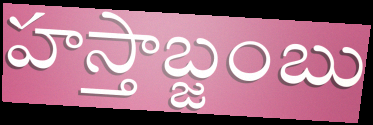
హస్తాబ్జంబు